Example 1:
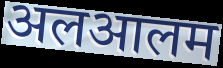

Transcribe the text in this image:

अलआलम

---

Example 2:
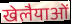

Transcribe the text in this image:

खेलैयाओं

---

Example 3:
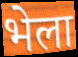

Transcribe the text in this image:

भेला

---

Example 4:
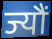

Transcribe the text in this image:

ज्यौं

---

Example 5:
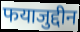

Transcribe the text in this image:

फयाजुद्दीन